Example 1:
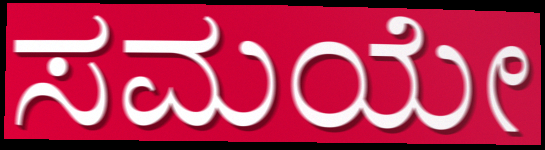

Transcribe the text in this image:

ಸಮಯೇ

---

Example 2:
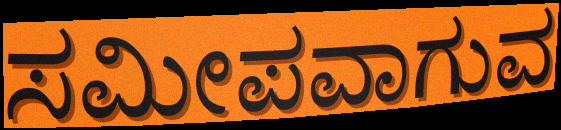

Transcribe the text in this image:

ಸಮೀಪವಾಗುವ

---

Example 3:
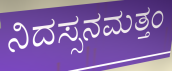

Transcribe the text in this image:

ನಿದಸ್ಸನಮತ್ತಂ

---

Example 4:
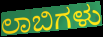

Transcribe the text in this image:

ಲಾಬಿಗಳು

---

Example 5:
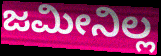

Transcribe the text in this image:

ಜಮೀನಿಲ್ಲ